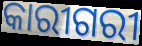
କାରୀଗରୀ